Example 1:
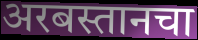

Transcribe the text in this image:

अरबस्तानचा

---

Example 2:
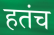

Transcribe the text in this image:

हतंच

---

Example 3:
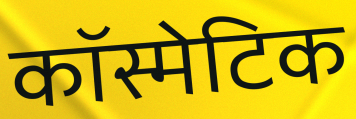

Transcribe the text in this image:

कॉस्मेटिक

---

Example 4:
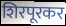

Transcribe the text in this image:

शिरपूरकर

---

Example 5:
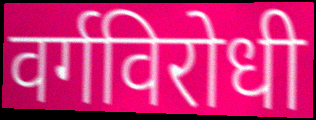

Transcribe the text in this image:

वर्गविरोधी